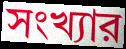
সংখ্যার